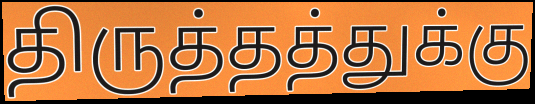
திருத்தத்துக்கு